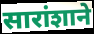
सारांशाने